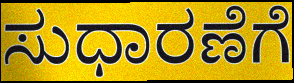
ಸುಧಾರಣೆಗೆ